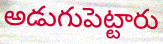
అడుగుపెట్టారు